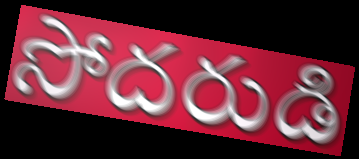
సోదరుడి